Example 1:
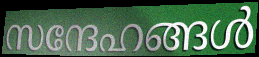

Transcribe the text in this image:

സന്ദേഹങ്ങൾ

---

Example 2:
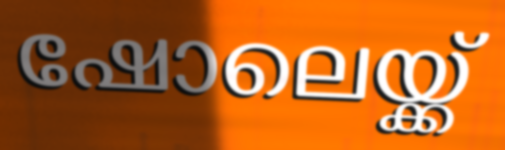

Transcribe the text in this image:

ഷോലെയ്ക്ക്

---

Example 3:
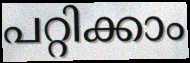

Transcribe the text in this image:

പറ്റിക്കാം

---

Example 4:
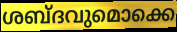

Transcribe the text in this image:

ശബ്ദവുമൊക്കെ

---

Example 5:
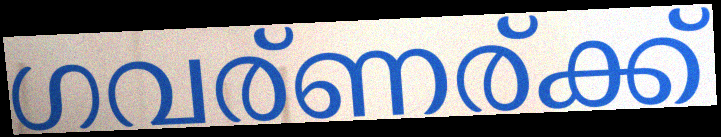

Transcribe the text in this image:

ഗവര്ണര്ക്ക്